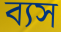
ব্যস